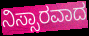
ನಿಸ್ಸಾರವಾದ